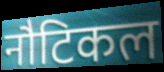
नौटिकल